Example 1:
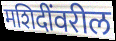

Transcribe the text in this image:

मशिदींवरील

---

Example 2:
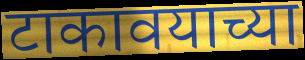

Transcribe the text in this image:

टाकावयाच्या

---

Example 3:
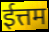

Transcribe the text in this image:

ईत्तम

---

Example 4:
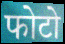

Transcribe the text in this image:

फोटो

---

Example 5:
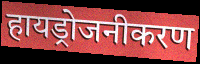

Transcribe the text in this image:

हायड्रोजनीकरण